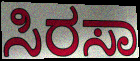
ಸಿರಸಾ